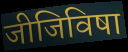
जीजिविषा